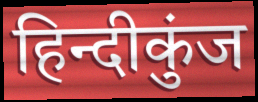
हिन्दीकुंज